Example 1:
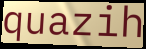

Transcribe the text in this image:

quazih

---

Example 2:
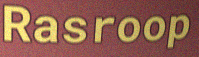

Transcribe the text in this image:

Rasroop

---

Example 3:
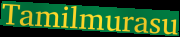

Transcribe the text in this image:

Tamilmurasu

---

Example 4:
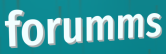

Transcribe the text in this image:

forumms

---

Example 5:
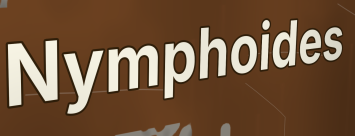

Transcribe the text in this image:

Nymphoides